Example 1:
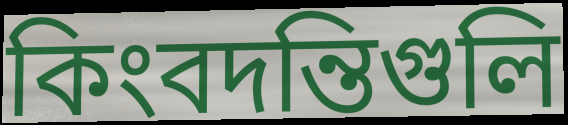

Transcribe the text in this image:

কিংবদন্তিগুলি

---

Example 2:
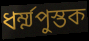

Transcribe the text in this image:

ধর্ম্মপুস্তক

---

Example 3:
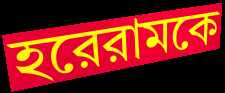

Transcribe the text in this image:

হরেরামকে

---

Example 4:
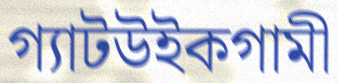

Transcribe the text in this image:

গ্যাটউইকগামী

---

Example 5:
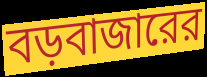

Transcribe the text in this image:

বড়বাজারের